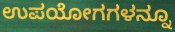
ಉಪಯೋಗಗಳನ್ನೂ